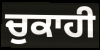
ਚੁਕਾਹੀ